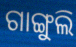
ଗାଙ୍ଗୁଲି